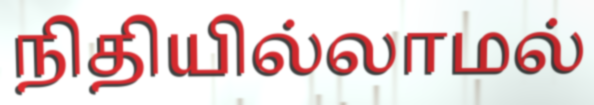
நிதியில்லாமல்